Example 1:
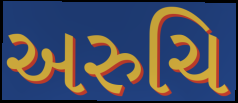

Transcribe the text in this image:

અરુચિ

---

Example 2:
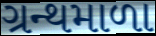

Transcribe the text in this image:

ગ્રન્થમાળા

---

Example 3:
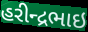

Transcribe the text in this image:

હરીન્દ્રભાઇ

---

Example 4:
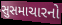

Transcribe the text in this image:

સુસમાચારનો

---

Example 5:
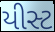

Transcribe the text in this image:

યીસ્ટ